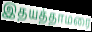
இதயத்தாமரை